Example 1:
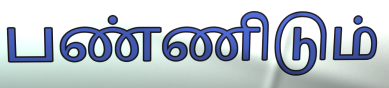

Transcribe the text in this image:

பண்ணிடும்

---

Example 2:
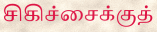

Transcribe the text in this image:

சிகிச்சைக்குத்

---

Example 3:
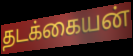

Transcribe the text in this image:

தடக்கையன்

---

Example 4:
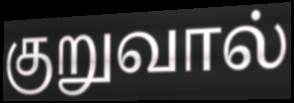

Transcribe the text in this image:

குறுவால்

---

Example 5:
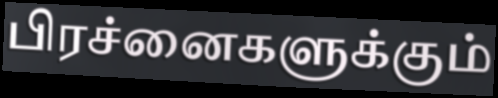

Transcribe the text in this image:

பிரச்னைகளுக்கும்